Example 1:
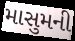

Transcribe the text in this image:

માસુમની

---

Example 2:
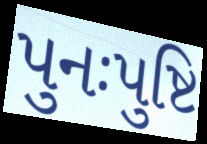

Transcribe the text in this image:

પુનઃપુષ્ટિ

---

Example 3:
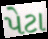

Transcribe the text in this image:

પેટા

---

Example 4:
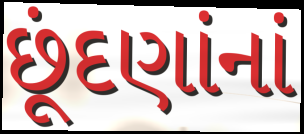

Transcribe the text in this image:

છૂંદણાંનાં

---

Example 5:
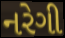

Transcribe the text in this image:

નરેગી